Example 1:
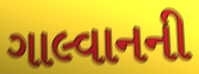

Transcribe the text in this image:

ગાલ્વાનની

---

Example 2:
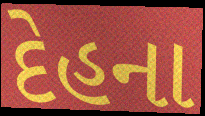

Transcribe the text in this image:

દેહના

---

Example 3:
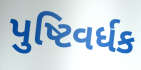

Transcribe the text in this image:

પુષ્ટિવર્ધક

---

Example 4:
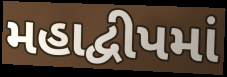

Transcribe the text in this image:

મહાદ્વીપમાં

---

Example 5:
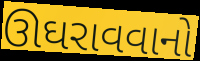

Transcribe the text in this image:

ઊઘરાવવાનો